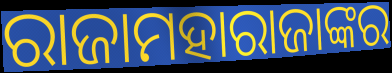
ରାଜାମହାରାଜାଙ୍କର